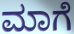
ಮಾಗೆ